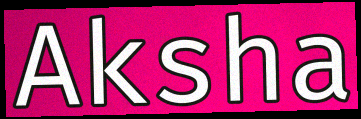
Aksha